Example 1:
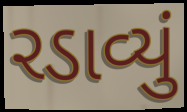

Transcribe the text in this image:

રડાવ્યું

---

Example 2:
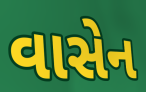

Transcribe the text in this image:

વાસેન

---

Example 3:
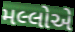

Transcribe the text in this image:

મલ્લોએ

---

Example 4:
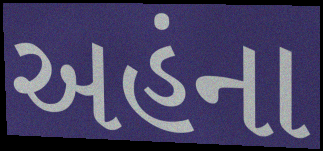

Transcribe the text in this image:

અહંના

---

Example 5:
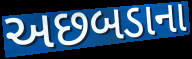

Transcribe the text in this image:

અછબડાના